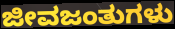
ಜೀವಜಂತುಗಳು